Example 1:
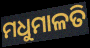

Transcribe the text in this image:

ମଧୁମାଳତି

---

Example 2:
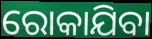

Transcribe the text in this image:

ରୋକାଯିବା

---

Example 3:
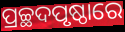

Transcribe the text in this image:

ପ୍ରଚ୍ଛଦପୃଷ୍ଠାରେ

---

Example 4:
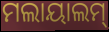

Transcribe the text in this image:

ମଲାୟାଲମ୍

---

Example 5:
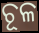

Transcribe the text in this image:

ଚୂଳ